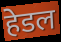
हेडल